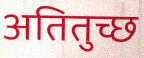
अतितुच्छ